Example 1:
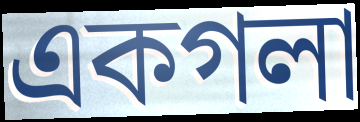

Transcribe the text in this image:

একগলা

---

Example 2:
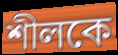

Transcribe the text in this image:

শীলকে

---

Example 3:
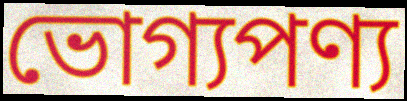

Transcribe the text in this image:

ভোগ্যপণ্য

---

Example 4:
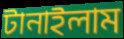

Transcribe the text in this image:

টানাইলাম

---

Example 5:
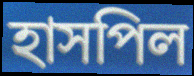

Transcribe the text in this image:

হাসপিল